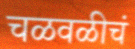
चळवळीचं